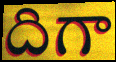
దిగా